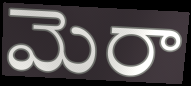
మెరా